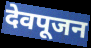
देवपूजन